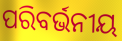
ପରିବର୍ଭନୀୟ